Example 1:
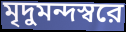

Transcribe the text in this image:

মৃদুমন্দস্বরে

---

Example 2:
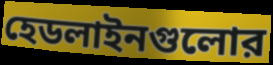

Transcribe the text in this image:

হেডলাইনগুলোর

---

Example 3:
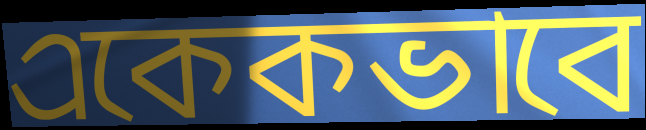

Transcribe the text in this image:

একেকভাবে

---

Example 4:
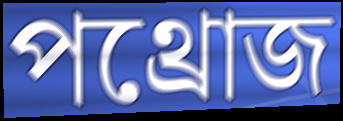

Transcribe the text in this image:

পথ্রোজ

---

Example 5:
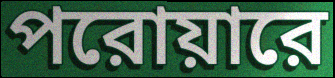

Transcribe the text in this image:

পরোয়ারে